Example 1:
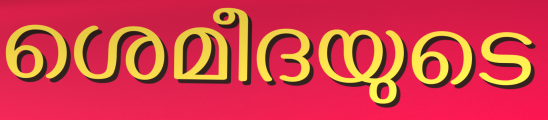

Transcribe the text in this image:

ശെമീദയുടെ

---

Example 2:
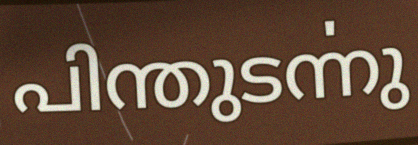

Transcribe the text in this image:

പിന്തുടൎന്നു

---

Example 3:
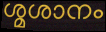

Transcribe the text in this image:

ശ്മശാനം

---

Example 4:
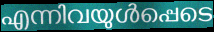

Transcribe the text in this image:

എന്നിവയുൾപ്പെടെ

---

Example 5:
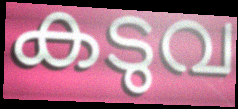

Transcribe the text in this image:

കടുവ